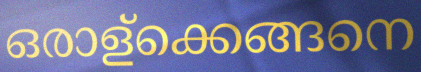
ഒരാള്ക്കെങ്ങനെ